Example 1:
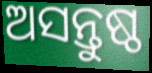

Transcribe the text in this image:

ଅସନ୍ତୁଷ୍ଠ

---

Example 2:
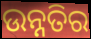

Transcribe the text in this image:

ଉନ୍ନତିର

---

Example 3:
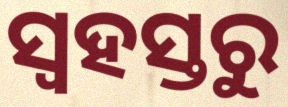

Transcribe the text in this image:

ସ୍ୱହସ୍ତରୁ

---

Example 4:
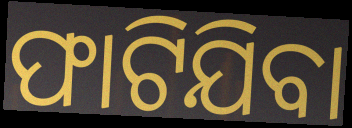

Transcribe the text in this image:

ଫାଟିଯିବା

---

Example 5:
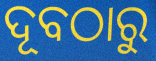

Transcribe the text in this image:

ଦୂବଠାରୁ